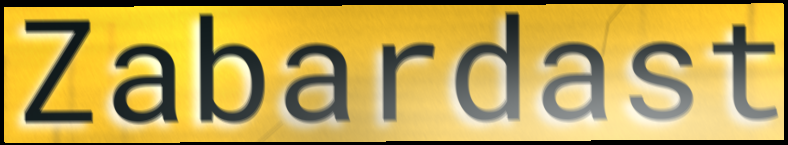
Zabardast